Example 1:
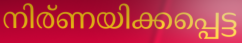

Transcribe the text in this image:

നിര്ണയിക്കപ്പെട്ട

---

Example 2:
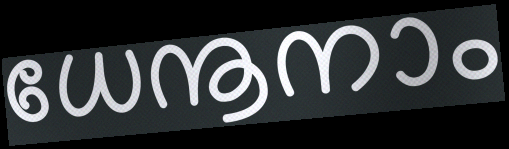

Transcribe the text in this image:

ധേനൂനാം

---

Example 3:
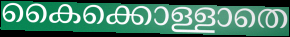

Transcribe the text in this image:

കൈക്കൊള്ളാതെ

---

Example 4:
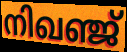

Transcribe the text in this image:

നിഖഞ്ജ്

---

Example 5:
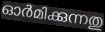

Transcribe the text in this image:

ഓർമിക്കുന്നതു